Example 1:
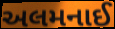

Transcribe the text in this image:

અલમનાઈ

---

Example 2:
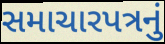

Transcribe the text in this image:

સમાચારપત્રનું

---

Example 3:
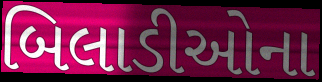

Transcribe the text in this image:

બિલાડીઓના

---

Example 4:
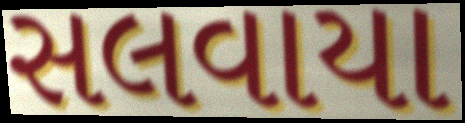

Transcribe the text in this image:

સલવાયા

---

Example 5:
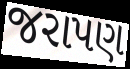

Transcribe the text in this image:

જરાપણ